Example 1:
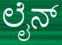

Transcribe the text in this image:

ಲೈನ್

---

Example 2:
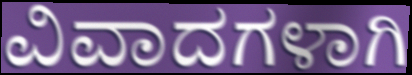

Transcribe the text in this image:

ವಿವಾದಗಳಾಗಿ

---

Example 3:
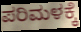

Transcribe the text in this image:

ಪರಿಮಳಕ್ಕೆ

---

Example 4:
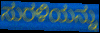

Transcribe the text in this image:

ಸುರಳಿಯನ್ನು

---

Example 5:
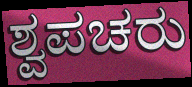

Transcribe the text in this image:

ಶ್ವಪಚರು